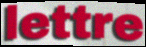
lettre